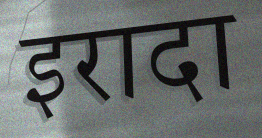
इरादा